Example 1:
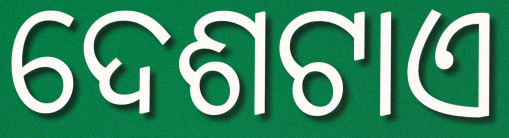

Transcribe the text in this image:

ଦେଶଟାଏ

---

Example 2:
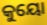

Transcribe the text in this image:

କୁୟୋ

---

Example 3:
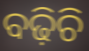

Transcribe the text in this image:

ବଢ଼ିଚି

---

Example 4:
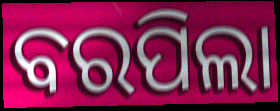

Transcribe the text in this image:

ବରପିଲା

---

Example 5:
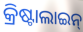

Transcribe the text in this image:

କ୍ରିଷ୍ଟାଲାଇନ୍